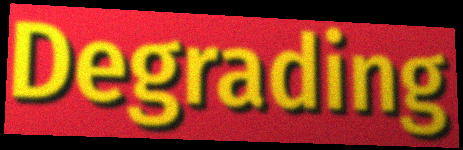
Degrading